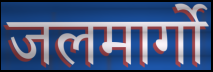
जलमार्गो